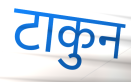
टाकुन